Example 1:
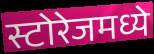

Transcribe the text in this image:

स्टोरेजमध्ये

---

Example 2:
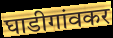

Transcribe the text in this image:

घाडीगांवकर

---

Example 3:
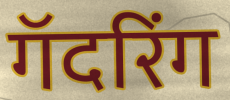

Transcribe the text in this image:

गॅदरिंग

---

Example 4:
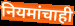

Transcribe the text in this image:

नियमांचाही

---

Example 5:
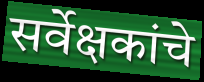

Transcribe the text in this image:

सर्वेक्षकांचे